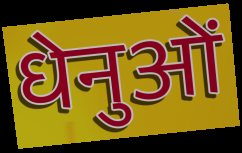
धेनुओं